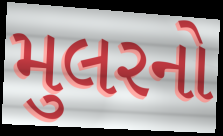
મુલરનો